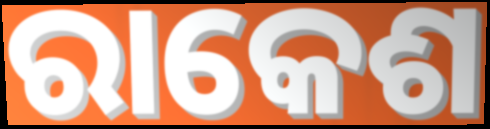
ରାକେଶ